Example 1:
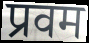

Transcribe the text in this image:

प्रवम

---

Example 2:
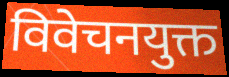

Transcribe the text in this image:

विवेचनयुक्त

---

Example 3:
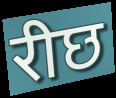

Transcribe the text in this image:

रीछ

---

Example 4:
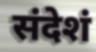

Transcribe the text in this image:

संदेशं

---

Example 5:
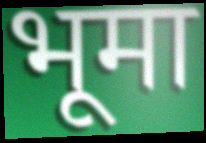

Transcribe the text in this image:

भूमा